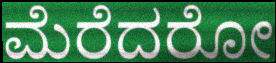
ಮೆರೆದರೋ